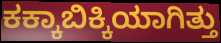
ಕಕ್ಕಾಬಿಕ್ಕಿಯಾಗಿತ್ತು